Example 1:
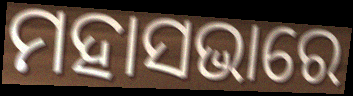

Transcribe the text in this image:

ମହାସଭାରେ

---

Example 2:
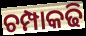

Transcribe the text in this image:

ଚମ୍ପାକଢି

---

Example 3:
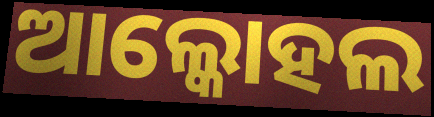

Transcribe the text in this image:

ଆଲ୍କୋହଲ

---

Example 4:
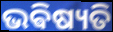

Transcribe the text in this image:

ଭଵିଷ୍ୟତି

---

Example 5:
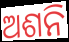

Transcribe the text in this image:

ଅଶନି